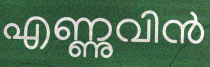
എണ്ണുവിൻ